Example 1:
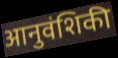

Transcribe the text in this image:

आनुवंशिकी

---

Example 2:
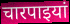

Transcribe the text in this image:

चारपाइयां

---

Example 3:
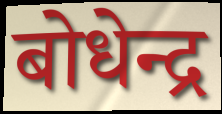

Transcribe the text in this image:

बोधेन्द्र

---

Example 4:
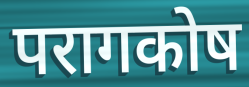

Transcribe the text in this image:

परागकोष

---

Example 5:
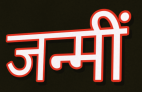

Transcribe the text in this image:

जन्मीं